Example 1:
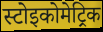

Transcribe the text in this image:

स्टोइकोमेट्रिक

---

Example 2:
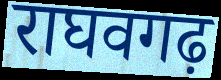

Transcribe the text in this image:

राघवगढ़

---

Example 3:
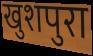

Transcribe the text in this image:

खुशपुरा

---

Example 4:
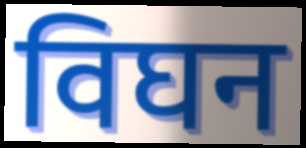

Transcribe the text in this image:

विघन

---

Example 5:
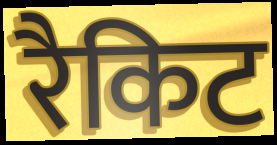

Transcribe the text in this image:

रैकिट